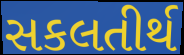
સકલતીર્થ